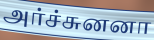
அர்ச்சுனனா